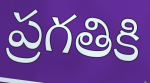
ప్రగతికి